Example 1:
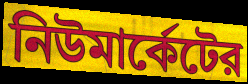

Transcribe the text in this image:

নিউমার্কেটের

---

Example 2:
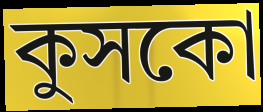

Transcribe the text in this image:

কুসকো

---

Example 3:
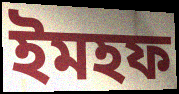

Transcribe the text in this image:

ইমহফ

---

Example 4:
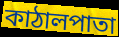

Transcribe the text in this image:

কাঠালপাতা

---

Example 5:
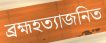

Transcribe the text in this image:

ব্রহ্মহত্যাজনিত